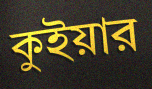
কুইয়ার